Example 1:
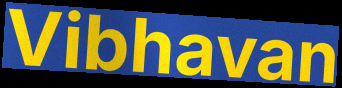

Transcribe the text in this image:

Vibhavan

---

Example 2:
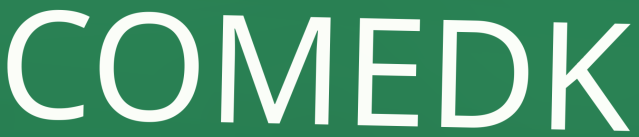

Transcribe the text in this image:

COMEDK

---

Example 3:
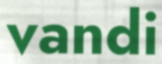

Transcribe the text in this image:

vandi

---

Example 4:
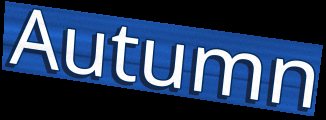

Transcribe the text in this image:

Autumn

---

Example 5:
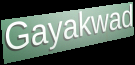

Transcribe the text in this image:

Gayakwad